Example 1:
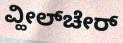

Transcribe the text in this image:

ವ್ಹೀಲ್‌ಚೇರ್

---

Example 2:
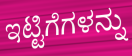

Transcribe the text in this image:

ಇಟ್ಟಿಗೆಗಳನ್ನು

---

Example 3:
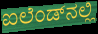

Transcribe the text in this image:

ಐಲೆಂಡ್‌ನಲ್ಲಿ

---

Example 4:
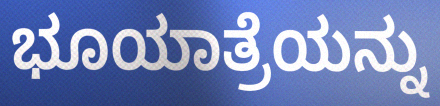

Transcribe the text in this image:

ಭೂಯಾತ್ರೆಯನ್ನು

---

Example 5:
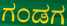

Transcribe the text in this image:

ಗಂಡಗ